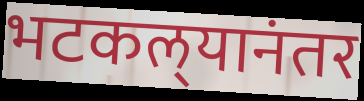
भटकल्यानंतर